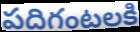
పదిగంటలకి